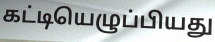
கட்டியெழுப்பியது